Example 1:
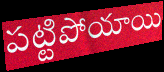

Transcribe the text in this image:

పట్టిపోయాయి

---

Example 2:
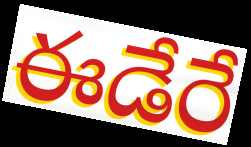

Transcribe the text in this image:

ఈడేరే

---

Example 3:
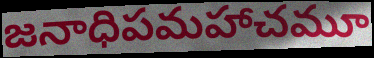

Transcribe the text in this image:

జనాధిపమహాచమూ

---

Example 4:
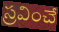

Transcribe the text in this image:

స్రవించే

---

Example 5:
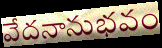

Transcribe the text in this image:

వేదనానుభవం